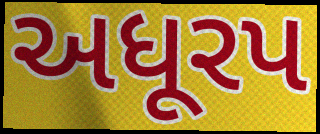
અધૂરપ